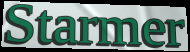
Starmer